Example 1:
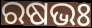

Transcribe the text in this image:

ରଷଭଃ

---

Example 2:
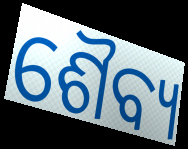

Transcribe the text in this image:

ଶୈବ୍ୟ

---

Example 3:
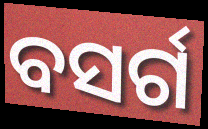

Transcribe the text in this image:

ବସର୍ଗ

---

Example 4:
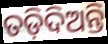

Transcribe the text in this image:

ତଡ଼ିଦିଅନ୍ତି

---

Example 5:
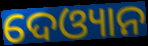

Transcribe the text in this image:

ଦେଓ୍ୟାନ